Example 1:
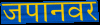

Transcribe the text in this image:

जपानवर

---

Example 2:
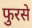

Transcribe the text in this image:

फुरसे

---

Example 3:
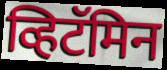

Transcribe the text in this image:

व्हिटॅमिन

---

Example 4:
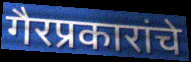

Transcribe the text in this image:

गैरप्रकारांचे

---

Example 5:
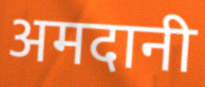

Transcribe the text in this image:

अमदानी